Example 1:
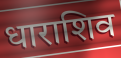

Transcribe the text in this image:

धाराशिव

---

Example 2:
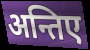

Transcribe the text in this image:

अन्तिए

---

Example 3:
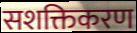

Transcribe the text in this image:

सशक्तिकरण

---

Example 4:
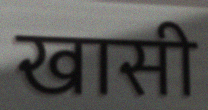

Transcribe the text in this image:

खासी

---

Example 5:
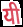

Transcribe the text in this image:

यी